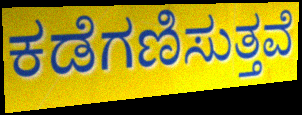
ಕಡೆಗಣಿಸುತ್ತವೆ